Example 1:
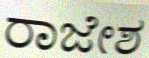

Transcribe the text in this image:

ರಾಜೇಶ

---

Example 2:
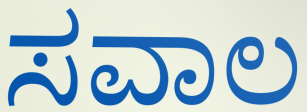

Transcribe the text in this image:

ಸವಾಲ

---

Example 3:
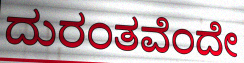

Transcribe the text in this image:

ದುರಂತವೆಂದೇ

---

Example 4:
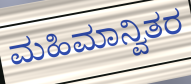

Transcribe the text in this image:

ಮಹಿಮಾನ್ವಿತರ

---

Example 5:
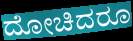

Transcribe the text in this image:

ದೋಚಿದರೂ